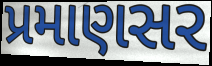
પ્રમાણસર